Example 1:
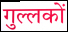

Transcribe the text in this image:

गुल्लकों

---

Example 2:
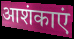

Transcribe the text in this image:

आशंकाएं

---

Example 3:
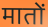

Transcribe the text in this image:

मातों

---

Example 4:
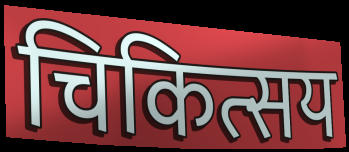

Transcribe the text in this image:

चिकित्सय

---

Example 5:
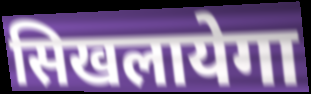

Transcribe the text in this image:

सिखलायेगा